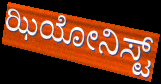
ಝಿಯೋನಿಸ್ಟ್